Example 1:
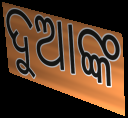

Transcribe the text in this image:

ଦୁଆଙ୍କ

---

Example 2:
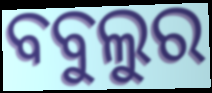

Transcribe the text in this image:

ବବୁଲୁର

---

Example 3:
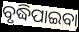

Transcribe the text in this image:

ବୃଦ୍ଧିପାଇବା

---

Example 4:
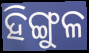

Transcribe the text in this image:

ହିଙ୍ଗୁଳ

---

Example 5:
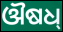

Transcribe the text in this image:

ଔଷଧ୍